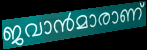
ജവാൻമാരാണ്